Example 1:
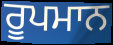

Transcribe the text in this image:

ਰੂਪਮਾਨ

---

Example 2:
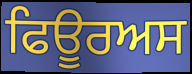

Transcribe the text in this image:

ਫਿਊਰਅਸ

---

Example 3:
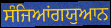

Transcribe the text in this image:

ਸੰਜਿਆਂਗਯੁਆਨ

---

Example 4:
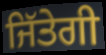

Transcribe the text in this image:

ਜਿੱਤੇਗੀ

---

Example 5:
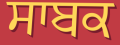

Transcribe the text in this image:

ਸਾਬਕ